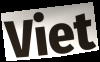
Viet